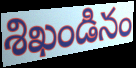
శిఖండినం